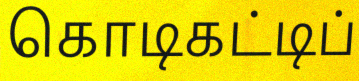
கொடிகட்டிப்